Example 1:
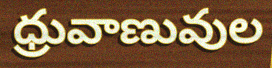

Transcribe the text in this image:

ధ్రువాణువుల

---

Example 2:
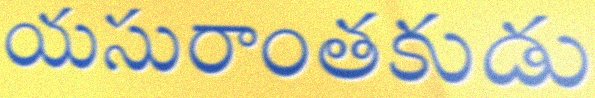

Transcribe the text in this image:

యసురాంతకుడు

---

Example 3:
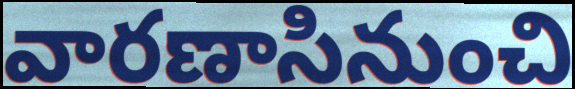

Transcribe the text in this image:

వారణాసినుంచి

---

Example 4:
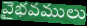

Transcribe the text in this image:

వైభవములు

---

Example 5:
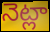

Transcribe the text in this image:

నెట్లా